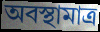
অবস্থামাত্র